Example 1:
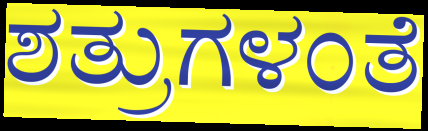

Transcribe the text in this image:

ಶತ್ರುಗಳಂತೆ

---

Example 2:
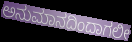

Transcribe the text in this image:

ಅನುಮಾನದಿಂದಾಗಲೀ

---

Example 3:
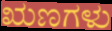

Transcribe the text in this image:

ಋಣಗಳು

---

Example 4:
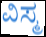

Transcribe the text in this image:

ವಿಸ್ಮ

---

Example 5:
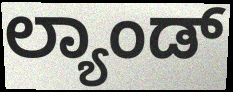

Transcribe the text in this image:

ಲ್ಯಾಂಡ್